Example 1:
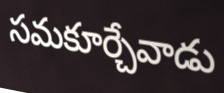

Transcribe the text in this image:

సమకూర్చేవాడు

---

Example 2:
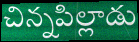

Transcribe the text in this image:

చిన్నపిల్లాడు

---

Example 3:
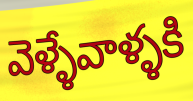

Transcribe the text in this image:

వెళ్ళేవాళ్ళకి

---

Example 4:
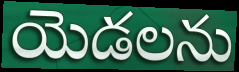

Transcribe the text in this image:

యెడలను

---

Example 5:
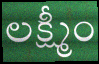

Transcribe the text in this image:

లక్ష్మీం